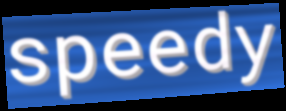
speedy